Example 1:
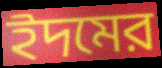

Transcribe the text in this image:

ইদমের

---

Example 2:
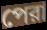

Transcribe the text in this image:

পেরা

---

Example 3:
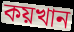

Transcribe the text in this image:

কয়খান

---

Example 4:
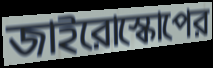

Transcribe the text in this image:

জাইরোস্কোপের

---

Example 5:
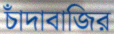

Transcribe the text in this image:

চাঁদাবাজির